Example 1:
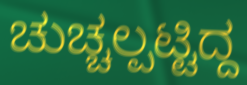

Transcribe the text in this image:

ಚುಚ್ಚಲ್ಪಟ್ಟಿದ್ದ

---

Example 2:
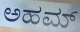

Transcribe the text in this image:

ಅಹಮ್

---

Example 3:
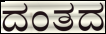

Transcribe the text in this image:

ದಂತದ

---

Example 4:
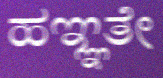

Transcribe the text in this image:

ಹಞ್ಞತೇ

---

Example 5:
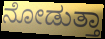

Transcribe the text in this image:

ನೋಡುತ್ತಾ